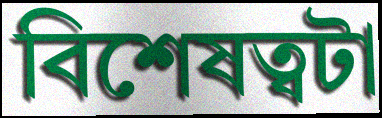
বিশেষত্বটা